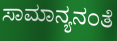
ಸಾಮಾನ್ಯನಂತೆ